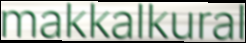
makkalkural